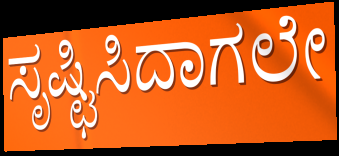
ಸೃಷ್ಟಿಸಿದಾಗಲೇ